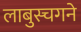
लाबुस्चगने